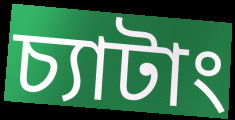
চ্যাটাং